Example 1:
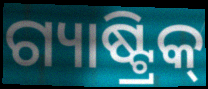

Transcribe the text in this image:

ଗ୍ୟାଷ୍ଟ୍ରିକ୍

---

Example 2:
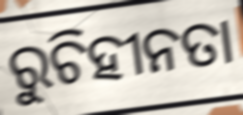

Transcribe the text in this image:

ରୁଚିହୀନତା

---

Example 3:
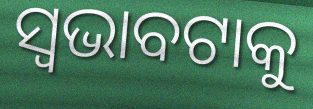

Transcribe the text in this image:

ସ୍ଵଭାବଟାକୁ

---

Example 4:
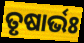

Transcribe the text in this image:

ତୃଷାର୍ଭଃ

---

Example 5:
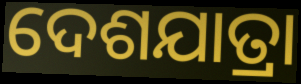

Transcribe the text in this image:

ଦେଶଯାତ୍ରା